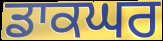
ਡਾਕਘਰ